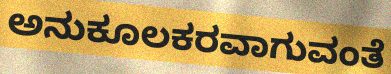
ಅನುಕೂಲಕರವಾಗುವಂತೆ